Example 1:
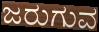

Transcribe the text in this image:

ಜರುಗುವ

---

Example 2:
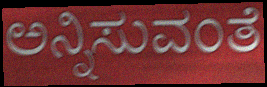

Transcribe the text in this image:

ಅನ್ನಿಸುವಂತೆ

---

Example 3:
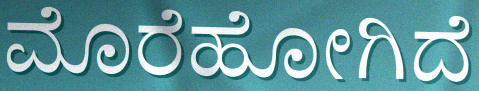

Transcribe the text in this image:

ಮೊರೆಹೋಗಿದೆ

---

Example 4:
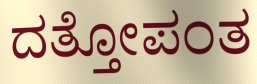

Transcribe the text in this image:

ದತ್ತೋಪಂತ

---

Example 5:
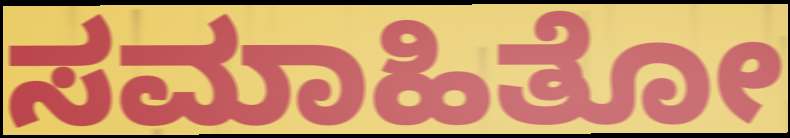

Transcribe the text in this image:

ಸಮಾಹಿತೋ